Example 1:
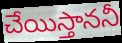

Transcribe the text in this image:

చేయిస్తాననీ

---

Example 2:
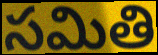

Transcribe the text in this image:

సమితి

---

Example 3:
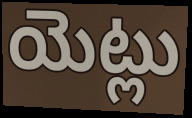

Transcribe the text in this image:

యెట్లు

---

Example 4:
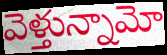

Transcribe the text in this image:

వెళ్తున్నామో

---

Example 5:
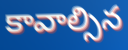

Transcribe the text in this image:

కావాల్సిన